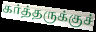
கர்த்தருக்குச்